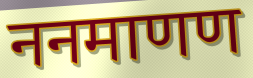
ननमाणण